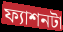
ফ্যাশনটা